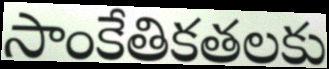
సాంకేతికతలకు